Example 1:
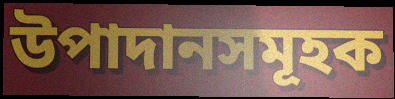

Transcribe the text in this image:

উপাদানসমূহক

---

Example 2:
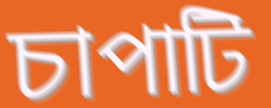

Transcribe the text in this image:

চাপাটি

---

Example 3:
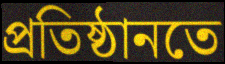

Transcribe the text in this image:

প্ৰতিষ্ঠানতে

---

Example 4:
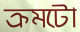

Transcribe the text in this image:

ক্ৰমটো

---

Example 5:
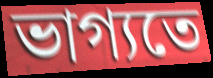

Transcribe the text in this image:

ভাগ্যতে